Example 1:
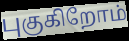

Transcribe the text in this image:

புகுகிறோம்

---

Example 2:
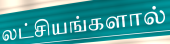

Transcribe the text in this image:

லட்சியங்களால்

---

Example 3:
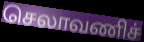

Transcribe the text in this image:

செலாவணிச்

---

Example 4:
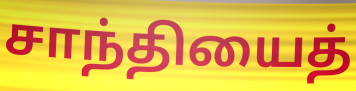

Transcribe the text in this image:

சாந்தியைத்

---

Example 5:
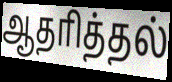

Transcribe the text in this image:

ஆதரித்தல்